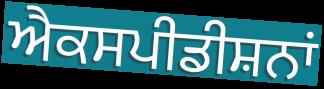
ਐਕਸਪੀਡੀਸ਼ਨਾਂ